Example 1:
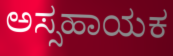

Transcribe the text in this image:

ಅಸ್ಸಹಾಯಕ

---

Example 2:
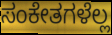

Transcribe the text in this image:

ಸಂಕೇತಗಳೆಲ್ಲ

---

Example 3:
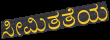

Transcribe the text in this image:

ಸೀಮಿತತೆಯ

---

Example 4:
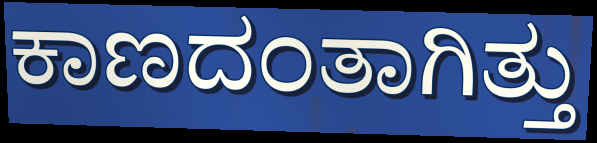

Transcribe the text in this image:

ಕಾಣದಂತಾಗಿತ್ತು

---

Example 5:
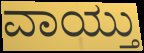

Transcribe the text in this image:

ವಾಯ್ತು